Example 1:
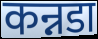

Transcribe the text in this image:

कन्नडा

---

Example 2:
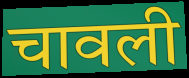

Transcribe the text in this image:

चावली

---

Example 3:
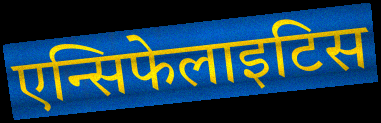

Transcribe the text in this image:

एन्सिफेलाइटिस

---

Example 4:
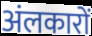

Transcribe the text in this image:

अंलकारों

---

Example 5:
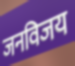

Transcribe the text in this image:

जनविजय